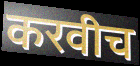
करवीच